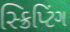
સ્ક્રિપ્ટિંગ